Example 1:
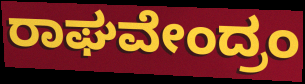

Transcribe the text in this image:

ರಾಘವೇಂದ್ರಂ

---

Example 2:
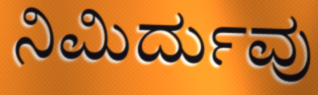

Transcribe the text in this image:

ನಿಮಿರ್ದುವು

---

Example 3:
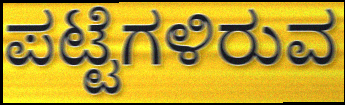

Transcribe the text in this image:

ಪಟ್ಟೆಗಳಿರುವ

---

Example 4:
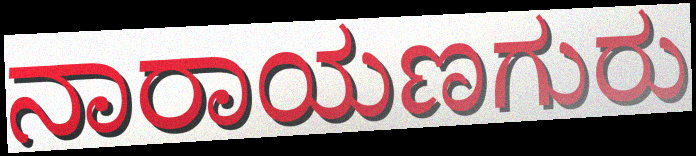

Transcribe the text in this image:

ನಾರಾಯಣಗುರು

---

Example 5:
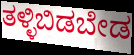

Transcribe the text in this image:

ತಳ್ಳಿಬಿಡಬೇಡ